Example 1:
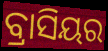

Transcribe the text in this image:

ବ୍ରାସିୟର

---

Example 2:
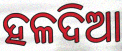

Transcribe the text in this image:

ହଳଦିଆ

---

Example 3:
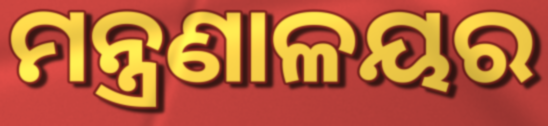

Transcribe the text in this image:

ମନ୍ତ୍ରଣାଳୟର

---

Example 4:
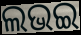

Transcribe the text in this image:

ଲଭଇ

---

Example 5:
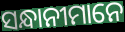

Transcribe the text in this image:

ସନ୍ଧାନୀମାନେ